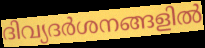
ദിവ്യദർശനങ്ങളിൽ